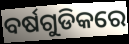
ବର୍ଷଗୁଡିକରେ